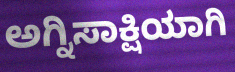
ಅಗ್ನಿಸಾಕ್ಷಿಯಾಗಿ